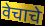
वेचाचे